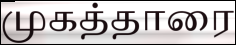
முகத்தாரை